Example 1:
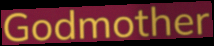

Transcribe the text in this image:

Godmother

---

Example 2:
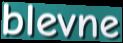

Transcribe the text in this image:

blevne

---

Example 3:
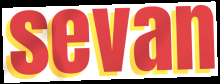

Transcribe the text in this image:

sevan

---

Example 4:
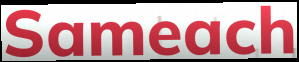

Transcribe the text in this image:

Sameach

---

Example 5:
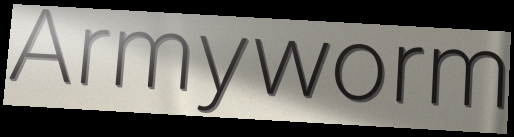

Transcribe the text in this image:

Armyworm